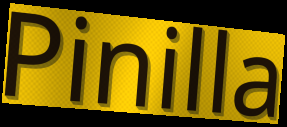
Pinilla